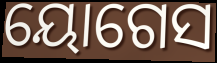
ୟୋଗେସ